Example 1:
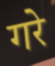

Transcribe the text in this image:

गरे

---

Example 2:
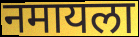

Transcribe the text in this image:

नमायला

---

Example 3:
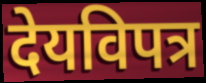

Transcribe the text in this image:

देयविपत्र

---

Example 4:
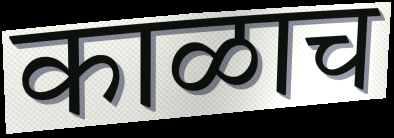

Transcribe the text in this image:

काळाच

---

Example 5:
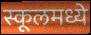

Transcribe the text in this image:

स्कूलमध्ये